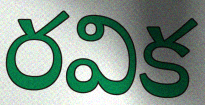
రవిక